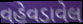
વહેવડાવેલ